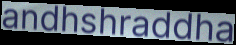
andhshraddha